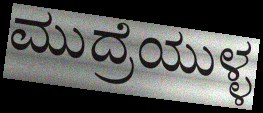
ಮುದ್ರೆಯುಳ್ಳ